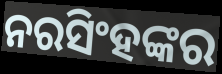
ନରସିଂହଙ୍କର